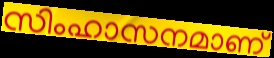
സിംഹാസനമാണ്